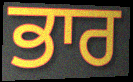
ਭਾਰ